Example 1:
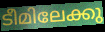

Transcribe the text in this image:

ടീമിലേക്കു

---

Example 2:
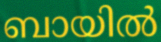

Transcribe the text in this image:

ബായിൽ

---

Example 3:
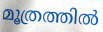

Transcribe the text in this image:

മൂത്രത്തിൽ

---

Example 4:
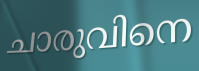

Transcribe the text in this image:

ചാരുവിനെ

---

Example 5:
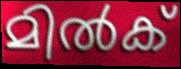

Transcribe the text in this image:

മിൽക്